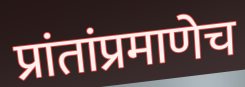
प्रांतांप्रमाणेच